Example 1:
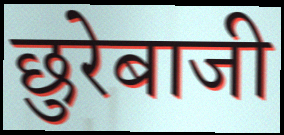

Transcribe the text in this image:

छुरेबाजी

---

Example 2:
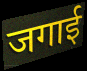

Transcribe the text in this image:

जगाई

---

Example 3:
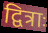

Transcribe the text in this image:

द्वित्राः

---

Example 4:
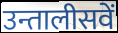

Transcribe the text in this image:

उन्तालीसवें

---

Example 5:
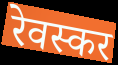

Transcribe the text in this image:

रेवस्कर